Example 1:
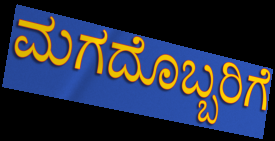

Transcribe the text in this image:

ಮಗದೊಬ್ಬರಿಗೆ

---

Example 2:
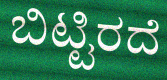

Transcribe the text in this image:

ಬಿಟ್ಟಿರದೆ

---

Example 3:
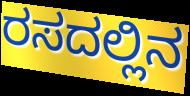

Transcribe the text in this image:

ರಸದಲ್ಲಿನ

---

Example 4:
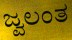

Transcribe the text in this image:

ಜ್ವಲಂತ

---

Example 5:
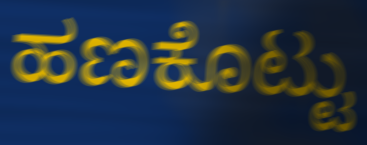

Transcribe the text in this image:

ಹಣಕೊಟ್ಟು